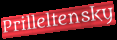
Prilleltensky